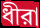
ধীরা